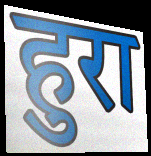
हुरा